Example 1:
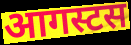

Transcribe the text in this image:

आगस्टस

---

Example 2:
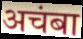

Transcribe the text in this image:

अचंबा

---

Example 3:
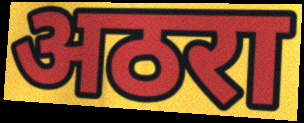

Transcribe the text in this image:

अठरा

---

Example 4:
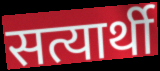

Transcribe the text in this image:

सत्यार्थी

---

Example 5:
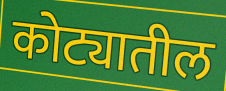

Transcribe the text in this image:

कोट्यातील